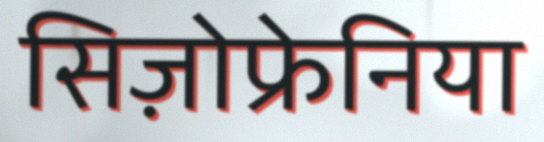
सिज़ोफ्रेनिया